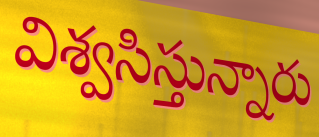
విశ్వసిస్తున్నారు